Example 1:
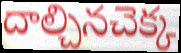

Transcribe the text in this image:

దాల్చినచెక్క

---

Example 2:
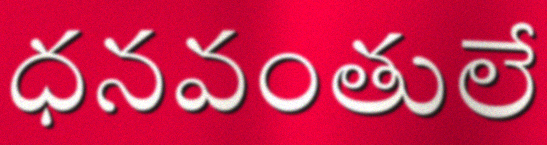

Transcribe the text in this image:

ధనవంతులే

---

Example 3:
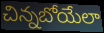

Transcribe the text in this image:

చిన్నబోయేలా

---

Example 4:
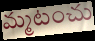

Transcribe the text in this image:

మ్మటంచు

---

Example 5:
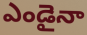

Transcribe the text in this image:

ఎండైనా